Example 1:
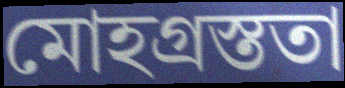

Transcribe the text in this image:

মোহগ্রস্ততা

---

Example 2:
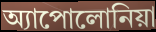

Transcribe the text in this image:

অ্যাপোলোনিয়া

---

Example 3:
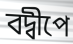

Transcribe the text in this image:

বদ্বীপে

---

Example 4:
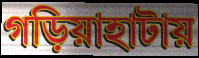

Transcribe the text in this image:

গড়িয়াহাটায়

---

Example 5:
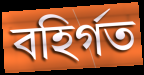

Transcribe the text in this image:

বহির্গত